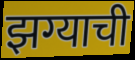
झग्याची